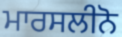
ਮਾਰਸਲੀਨੋ